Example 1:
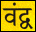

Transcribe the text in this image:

वंद्व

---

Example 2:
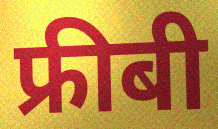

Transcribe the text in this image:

फ्रीबी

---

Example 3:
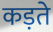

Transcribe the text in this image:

कड़ते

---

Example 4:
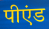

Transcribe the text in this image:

पीएंड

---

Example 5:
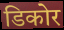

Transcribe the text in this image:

डिकोर